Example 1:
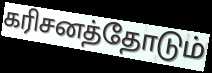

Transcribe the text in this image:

கரிசனத்தோடும்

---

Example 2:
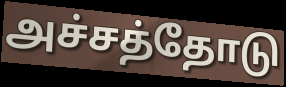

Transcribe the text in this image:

அச்சத்தோடு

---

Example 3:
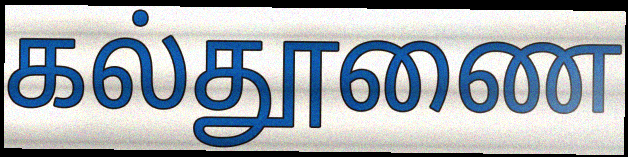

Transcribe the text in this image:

கல்தூணை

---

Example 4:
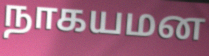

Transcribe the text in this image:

நாகயமன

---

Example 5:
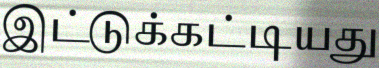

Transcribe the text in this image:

இட்டுக்கட்டியது